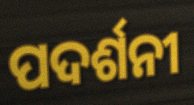
ପଦର୍ଶନୀ